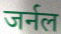
जर्नल